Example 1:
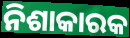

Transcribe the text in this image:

ନିଶାକାରକ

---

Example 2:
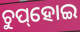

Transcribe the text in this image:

ଚୁପ୍‌ହୋଇ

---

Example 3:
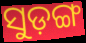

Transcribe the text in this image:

ସୁଡ଼ଙ୍ଗ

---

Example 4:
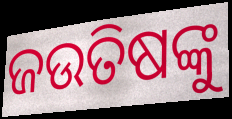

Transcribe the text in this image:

ଜଉତିଷଙ୍କୁ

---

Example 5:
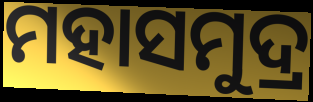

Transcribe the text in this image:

ମହାସମୁଦ୍ର